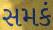
સમકં